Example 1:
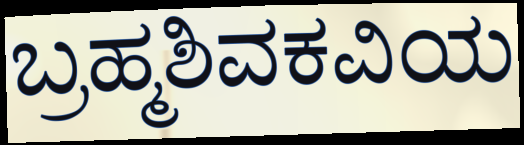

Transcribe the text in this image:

ಬ್ರಹ್ಮಶಿವಕವಿಯ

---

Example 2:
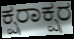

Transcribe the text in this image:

ಕ್ಷರಾಕ್ಷರ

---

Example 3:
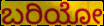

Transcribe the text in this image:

ಬರಿಯೋ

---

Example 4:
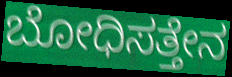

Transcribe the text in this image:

ಬೋಧಿಸತ್ತೇನ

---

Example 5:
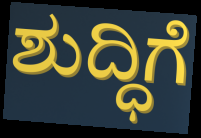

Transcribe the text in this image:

ಶುದ್ಧಿಗೆ